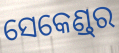
ସେକେଣ୍ଡ୍‌ର